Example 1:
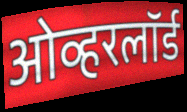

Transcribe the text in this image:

ओव्हरलॉर्ड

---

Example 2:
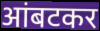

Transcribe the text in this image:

आंबटकर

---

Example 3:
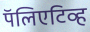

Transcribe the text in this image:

पॅलिएटिव्ह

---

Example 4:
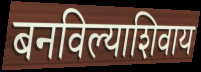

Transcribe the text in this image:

बनविल्याशिवाय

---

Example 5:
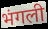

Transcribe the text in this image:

भंगली